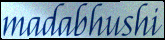
madabhushi